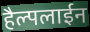
हैल्पलाईन